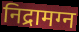
निद्रामग्न